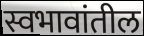
स्वभावांतील